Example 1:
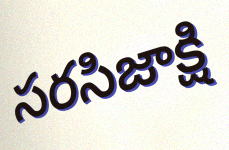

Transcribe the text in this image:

సరసిజాక్షి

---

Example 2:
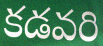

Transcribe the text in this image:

కడవరి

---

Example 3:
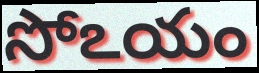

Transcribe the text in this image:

సోఽయం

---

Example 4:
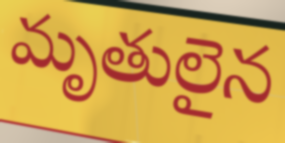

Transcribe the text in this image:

మృతులైన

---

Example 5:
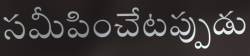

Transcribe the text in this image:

సమీపించేటప్పుడు